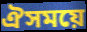
ঐসময়ে